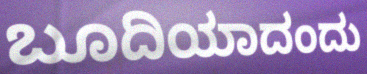
ಬೂದಿಯಾದಂದು